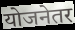
योजनेतर